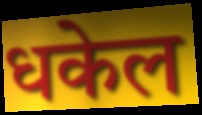
धकेल